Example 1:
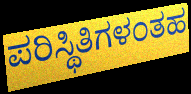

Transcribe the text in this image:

ಪರಿಸ್ಥಿತಿಗಳಂತಹ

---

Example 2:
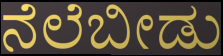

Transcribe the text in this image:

ನೆಲೆಬೀಡು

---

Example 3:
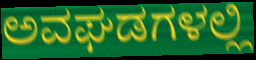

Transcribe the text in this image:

ಅವಘಡಗಳಲ್ಲಿ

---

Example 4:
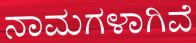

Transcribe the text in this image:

ನಾಮಗಳಾಗಿವೆ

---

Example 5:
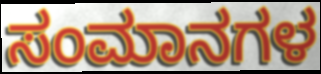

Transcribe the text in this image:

ಸಂಮಾನಗಳ